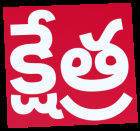
క్షేత్ర